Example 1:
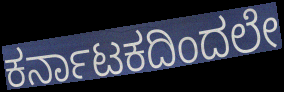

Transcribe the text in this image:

ಕರ್ನಾಟಕದಿಂದಲೇ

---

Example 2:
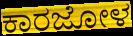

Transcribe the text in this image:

ಕಾರಜೋಳ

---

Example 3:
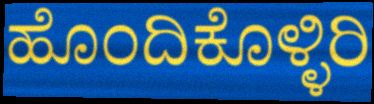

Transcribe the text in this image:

ಹೊಂದಿಕೊಳ್ಳಿರಿ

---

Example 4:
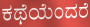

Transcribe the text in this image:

ಕಥೆಯೆಂದರೆ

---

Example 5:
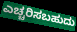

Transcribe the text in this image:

ಎಚ್ಚರಿಸಬಹುದು